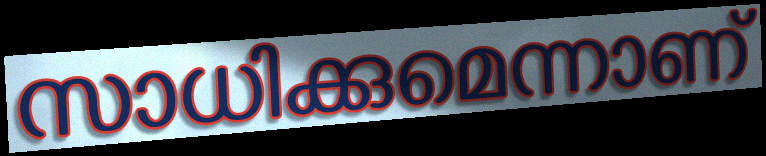
സാധിക്കുമെന്നാണ്